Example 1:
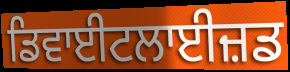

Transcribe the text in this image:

ਡਿਵਾਈਟਲਾਈਜ਼ਡ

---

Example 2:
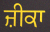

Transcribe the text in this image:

ਜ਼ੀਕਾ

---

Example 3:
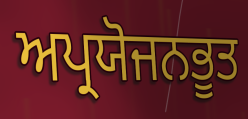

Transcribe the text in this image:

ਅਪ੍ਰਯੋਜਨਭੂਤ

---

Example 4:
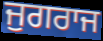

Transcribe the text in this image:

ਜੁਗਰਾਜ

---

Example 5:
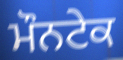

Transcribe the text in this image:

ਮੌਨਟੇਕ